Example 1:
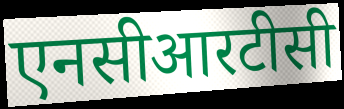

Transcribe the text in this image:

एनसीआरटीसी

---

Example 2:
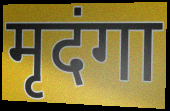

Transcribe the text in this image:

मृदंगा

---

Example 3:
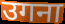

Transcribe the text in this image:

उगना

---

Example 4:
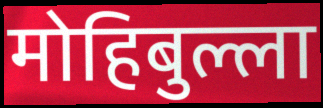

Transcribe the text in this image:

मोहिबुल्ला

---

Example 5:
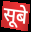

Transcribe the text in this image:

सूबे